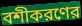
বশীকরণের